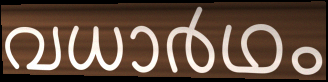
വധാർഥം